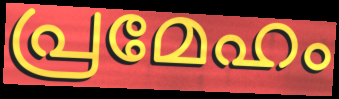
പ്രമേഹം